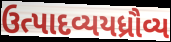
ઉત્પાદવ્યયધ્રૌવ્ય